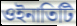
ওইনাতিটি